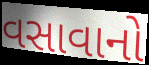
વસાવાનો